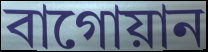
বাগোয়ান